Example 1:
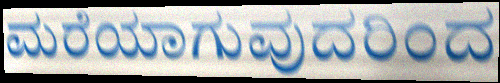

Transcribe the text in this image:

ಮರೆಯಾಗುವುದರಿಂದ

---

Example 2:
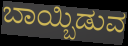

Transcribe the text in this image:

ಬಾಯ್ಬಿಡುವ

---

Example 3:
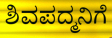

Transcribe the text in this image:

ಶಿವಪದ್ಮನಿಗೆ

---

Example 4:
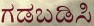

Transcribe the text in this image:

ಗಡಬಡಿಸಿ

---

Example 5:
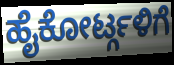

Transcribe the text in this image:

ಹೈಕೋರ್ಟ್ಗಳಿಗೆ